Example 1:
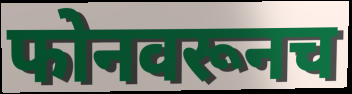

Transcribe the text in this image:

फोनवरूनच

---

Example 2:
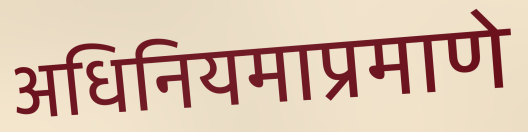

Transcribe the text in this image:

अधिनियमाप्रमाणे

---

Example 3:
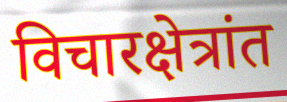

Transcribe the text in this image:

विचारक्षेत्रांत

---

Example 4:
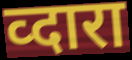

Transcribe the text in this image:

व्दारा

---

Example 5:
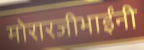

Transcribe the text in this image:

मोरारजीभाईंनी